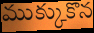
ముక్కుకొన